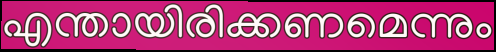
എന്തായിരിക്കണമെന്നും